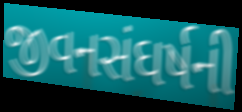
જીવનસંઘર્ષની